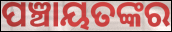
ପଞ୍ଚାୟତଙ୍କର